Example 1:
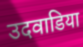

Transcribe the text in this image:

उदवाडिया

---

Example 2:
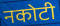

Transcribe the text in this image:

नकोटी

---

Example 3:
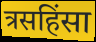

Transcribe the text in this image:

त्रसहिंसा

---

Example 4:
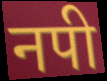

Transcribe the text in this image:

नपी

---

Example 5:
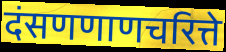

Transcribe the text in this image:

दंसणणाणचरित्ते